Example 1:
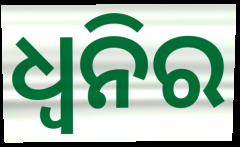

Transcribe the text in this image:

ଧ୍ୱନିର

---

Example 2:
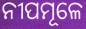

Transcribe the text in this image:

ନୀପମୂଳେ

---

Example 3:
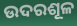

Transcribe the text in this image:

ଉଦରଶୂଳ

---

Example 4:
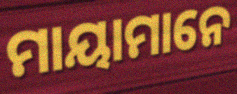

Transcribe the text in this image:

ମାୟାମାନେ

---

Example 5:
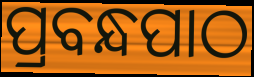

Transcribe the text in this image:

ପ୍ରବନ୍ଧପାଠ